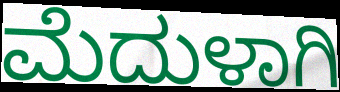
ಮೆದುಳಾಗಿ